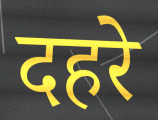
दहरे